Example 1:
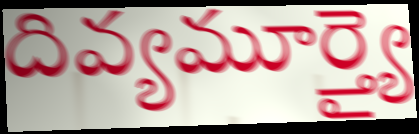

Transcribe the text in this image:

దివ్యమూర్త్యై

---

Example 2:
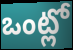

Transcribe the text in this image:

ఒంట్లో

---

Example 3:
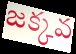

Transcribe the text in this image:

జక్కవ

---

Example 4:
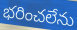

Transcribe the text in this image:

భరించలేను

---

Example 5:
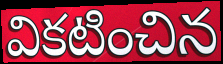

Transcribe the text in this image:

వికటించిన